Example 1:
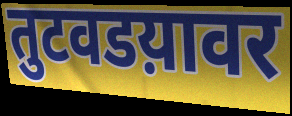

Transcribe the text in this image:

तुटवडय़ावर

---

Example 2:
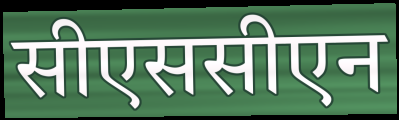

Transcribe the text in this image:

सीएससीएन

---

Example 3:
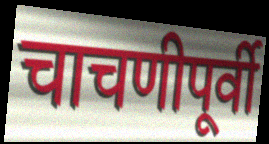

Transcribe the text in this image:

चाचणीपूर्वी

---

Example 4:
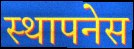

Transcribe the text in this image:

स्थापनेस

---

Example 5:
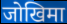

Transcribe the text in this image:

जोखिमा